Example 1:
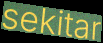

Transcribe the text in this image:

sekitar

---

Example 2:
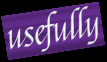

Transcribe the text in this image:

usefully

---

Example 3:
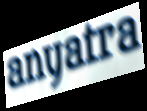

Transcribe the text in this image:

anyatra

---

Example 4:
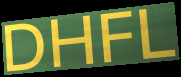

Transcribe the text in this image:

DHFL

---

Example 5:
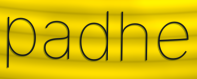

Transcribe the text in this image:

padhe